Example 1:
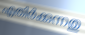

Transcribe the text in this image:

എതിർക്കുന്നതു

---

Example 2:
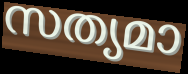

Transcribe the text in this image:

സത്യമാ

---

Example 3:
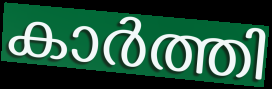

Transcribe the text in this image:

കാർത്തി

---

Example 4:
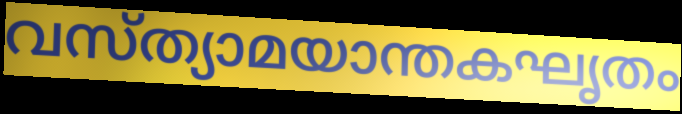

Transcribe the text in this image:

വസ്ത്യാമയാന്തകഘൃതം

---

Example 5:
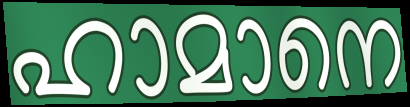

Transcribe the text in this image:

ഹാമാനെ